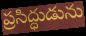
ప్రసిద్ధుడును